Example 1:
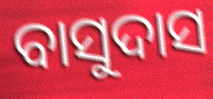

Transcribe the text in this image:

ବାସୁଦାସ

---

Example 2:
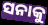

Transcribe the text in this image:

ସନାକୁ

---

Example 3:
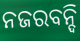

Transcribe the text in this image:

ନଜରବନ୍ଦି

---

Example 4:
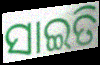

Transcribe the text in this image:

ସାଇତି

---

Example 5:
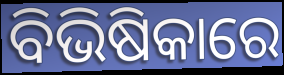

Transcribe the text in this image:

ବିଭିଷିକାରେ